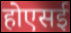
होएसई